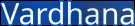
Vardhana